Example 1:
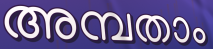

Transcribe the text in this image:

അമ്പതാം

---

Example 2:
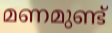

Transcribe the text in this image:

മണമുണ്ട്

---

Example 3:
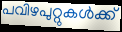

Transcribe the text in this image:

പവിഴപുറ്റുകൾക്ക്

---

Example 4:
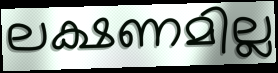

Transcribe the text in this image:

ലക്ഷണമില്ല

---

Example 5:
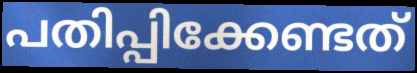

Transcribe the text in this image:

പതിപ്പിക്കേണ്ടത്